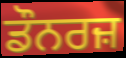
ਡੌਨਰਜ਼